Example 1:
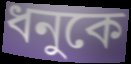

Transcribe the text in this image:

ধনুকে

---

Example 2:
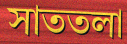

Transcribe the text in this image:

সাততলা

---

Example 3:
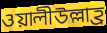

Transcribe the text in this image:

ওয়ালীউল্লাহ্র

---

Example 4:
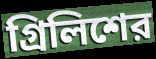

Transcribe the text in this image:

গ্রিলিশের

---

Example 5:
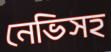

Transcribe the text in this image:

নেভিসহ